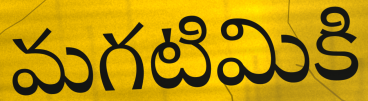
మగటిమికి